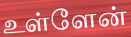
உள்ளேன்